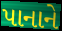
પાનાને